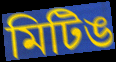
মিটিঙ